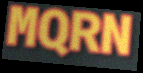
MQRN